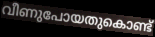
വീണുപോയതുകൊണ്ട്